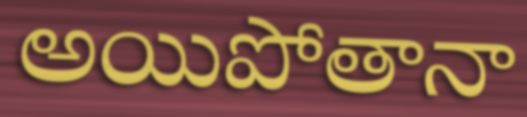
అయిపోతానా